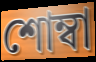
শোম্বা